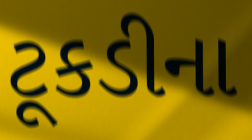
ટૂકડીના